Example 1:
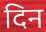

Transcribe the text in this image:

दिन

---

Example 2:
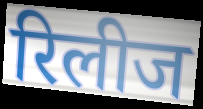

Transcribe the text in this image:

रिलीज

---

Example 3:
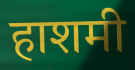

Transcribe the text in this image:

हाशमी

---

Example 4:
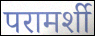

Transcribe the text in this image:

परामर्शी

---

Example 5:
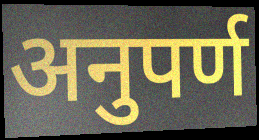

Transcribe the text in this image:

अनुपर्ण